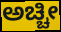
ಅಚ್ಚೀ